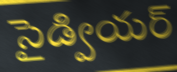
సైడ్వియర్